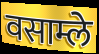
वसाम्ले